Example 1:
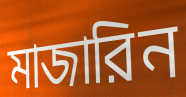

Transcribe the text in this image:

মাজারিন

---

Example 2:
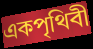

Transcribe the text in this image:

একপৃথিবী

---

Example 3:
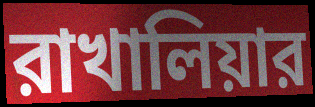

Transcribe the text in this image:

রাখালিয়ার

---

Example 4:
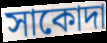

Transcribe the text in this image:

সাকোদা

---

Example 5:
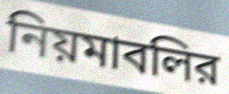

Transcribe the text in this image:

নিয়মাবলির